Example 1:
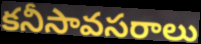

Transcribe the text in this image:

కనీసావసరాలు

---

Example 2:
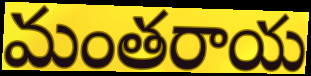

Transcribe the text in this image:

మంతరాయ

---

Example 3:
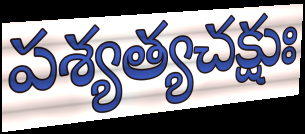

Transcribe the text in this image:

పశ్యత్యచక్షుః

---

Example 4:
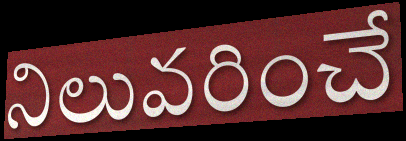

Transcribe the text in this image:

నిలువరించే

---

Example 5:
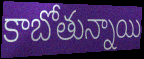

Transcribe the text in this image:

కాబోతున్నాయి